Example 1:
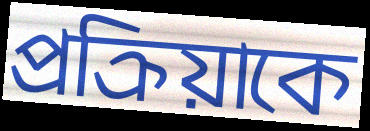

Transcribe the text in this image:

প্রক্রিয়াকে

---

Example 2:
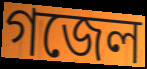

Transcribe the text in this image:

গজেল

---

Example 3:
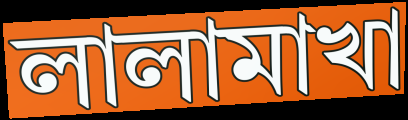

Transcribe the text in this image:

লালামাখা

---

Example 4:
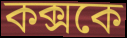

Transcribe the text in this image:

কক্সকে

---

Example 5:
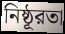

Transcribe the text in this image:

নিষ্ঠূরতা